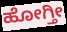
ಹೋಗ್ತೀ